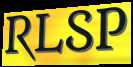
RLSP